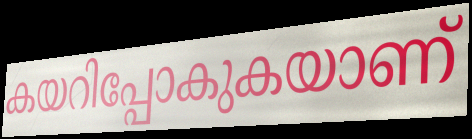
കയറിപ്പോകുകയാണ്